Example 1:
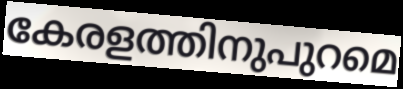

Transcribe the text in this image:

കേരളത്തിനുപുറമെ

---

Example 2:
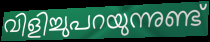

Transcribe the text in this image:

വിളിച്ചുപറയുന്നുണ്ട്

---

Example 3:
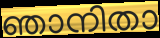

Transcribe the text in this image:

ഞാനിതാ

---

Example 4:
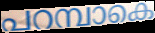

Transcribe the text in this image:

പറമ്പാകെ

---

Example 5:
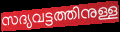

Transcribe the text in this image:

സദ്യവട്ടത്തിനുള്ള